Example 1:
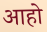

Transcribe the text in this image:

आहो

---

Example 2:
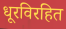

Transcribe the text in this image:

धूरविरहित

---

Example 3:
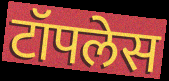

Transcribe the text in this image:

टॉपलेस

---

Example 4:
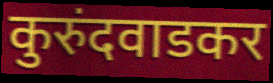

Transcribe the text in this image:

कुरुंदवाडकर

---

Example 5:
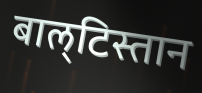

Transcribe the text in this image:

बाल्टिस्तान